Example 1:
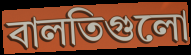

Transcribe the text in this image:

বালতিগুলো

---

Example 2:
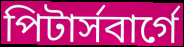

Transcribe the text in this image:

পিটার্সবার্গে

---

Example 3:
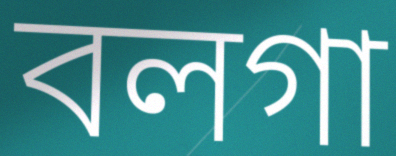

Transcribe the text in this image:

বলগা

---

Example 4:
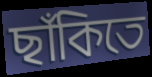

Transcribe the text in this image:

ছাঁকিতে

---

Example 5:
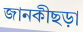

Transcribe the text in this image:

জানকীছড়া